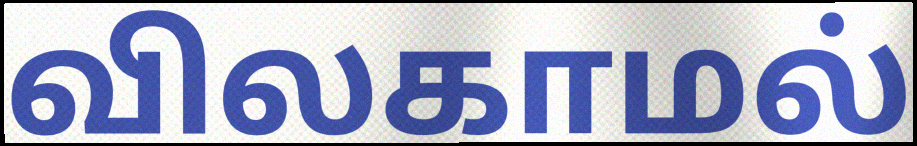
விலகாமல்